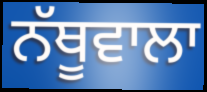
ਨੱਥੂਵਾਲਾ